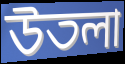
উতলা